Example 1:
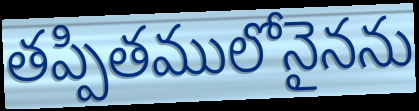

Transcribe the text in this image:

తప్పితములోనైనను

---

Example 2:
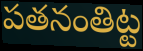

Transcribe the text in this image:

పతనంతిట్ట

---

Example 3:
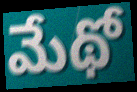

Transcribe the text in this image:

మేథో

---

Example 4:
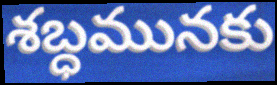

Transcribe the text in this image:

శబ్ధమునకు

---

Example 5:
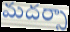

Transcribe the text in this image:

మదర్సా